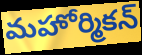
మహోర్మికన్